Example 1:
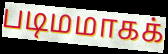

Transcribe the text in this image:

படிமமாகக்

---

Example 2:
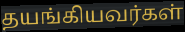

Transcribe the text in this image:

தயங்கியவர்கள்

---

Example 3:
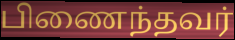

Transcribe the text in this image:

பிணைந்தவர்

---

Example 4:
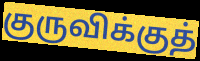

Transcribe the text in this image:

குருவிக்குத்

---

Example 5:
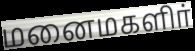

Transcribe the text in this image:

மனைமகளிர்